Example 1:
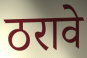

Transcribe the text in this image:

ठरावे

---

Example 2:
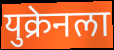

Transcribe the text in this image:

युक्रेनला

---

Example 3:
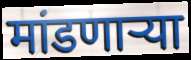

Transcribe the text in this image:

मांडणाऱ्या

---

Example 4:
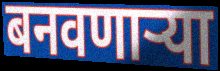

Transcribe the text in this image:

बनवणाऱ्या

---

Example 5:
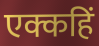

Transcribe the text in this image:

एक्कहिं